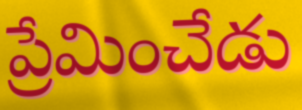
ప్రేమించేడు